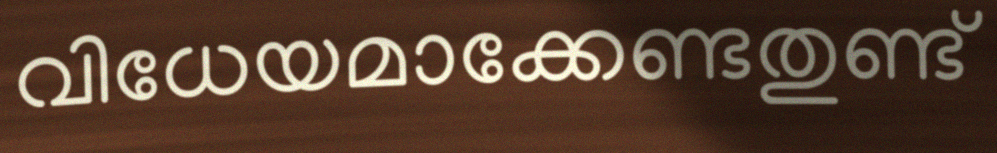
വിധേയമാക്കേണ്ടതുണ്ട്